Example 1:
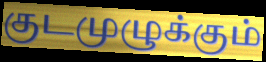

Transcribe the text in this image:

குடமுழுக்கும்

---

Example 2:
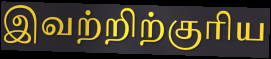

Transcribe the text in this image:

இவற்றிற்குரிய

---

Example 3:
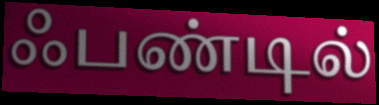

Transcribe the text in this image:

ஃபண்டில்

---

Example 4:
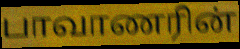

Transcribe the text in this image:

பாவாணரின்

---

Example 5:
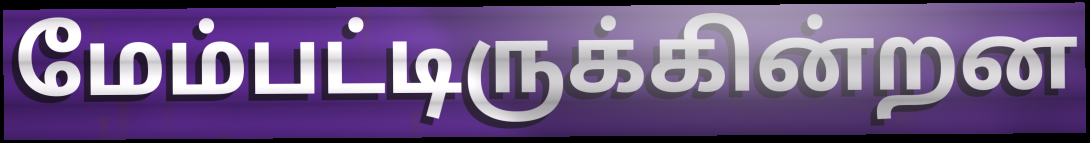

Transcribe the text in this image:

மேம்பட்டிருக்கின்றன